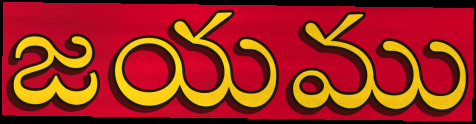
జయము